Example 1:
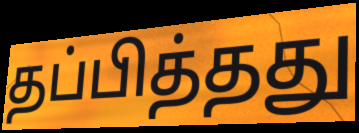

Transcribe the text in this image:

தப்பித்தது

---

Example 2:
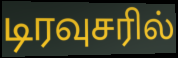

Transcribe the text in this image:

டிரவுசரில்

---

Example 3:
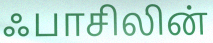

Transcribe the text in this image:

ஃபாசிலின்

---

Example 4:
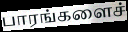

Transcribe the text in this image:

பாரங்களைச்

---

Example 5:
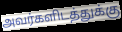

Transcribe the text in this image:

அவர்களிடத்துக்கு